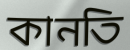
কানতি